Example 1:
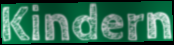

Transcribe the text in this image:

Kindern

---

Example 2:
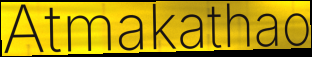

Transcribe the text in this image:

Atmakathao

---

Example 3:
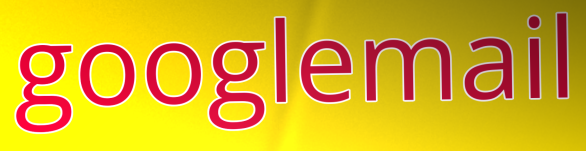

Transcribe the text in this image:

googlemail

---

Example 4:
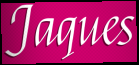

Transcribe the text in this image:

Jaques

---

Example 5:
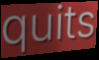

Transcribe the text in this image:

quits